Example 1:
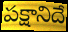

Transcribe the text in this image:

పక్షానిదే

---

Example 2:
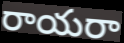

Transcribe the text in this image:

రాయరా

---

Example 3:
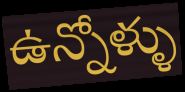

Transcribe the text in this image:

ఉన్నోళ్ళు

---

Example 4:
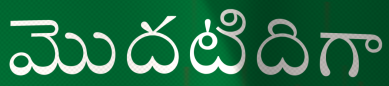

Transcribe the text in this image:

మొదటిదిగా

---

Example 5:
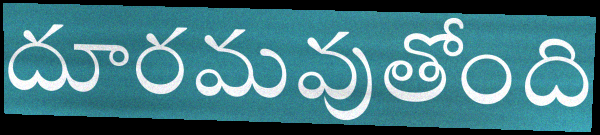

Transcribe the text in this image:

దూరమవుతోంది